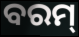
ବରମ୍